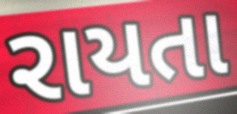
રાયતા